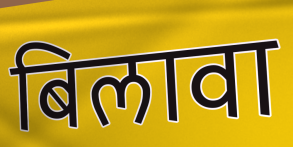
बिलावा